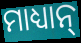
ମାଧ୍ୟାନ୍